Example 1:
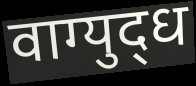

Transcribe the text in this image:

वाग्युद्ध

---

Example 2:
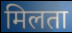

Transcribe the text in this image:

मिलता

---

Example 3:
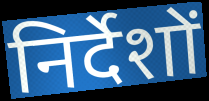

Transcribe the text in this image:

निर्देशों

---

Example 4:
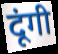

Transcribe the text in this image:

दूंगी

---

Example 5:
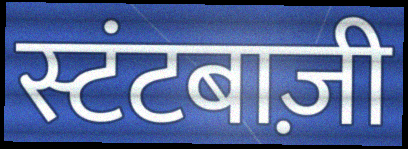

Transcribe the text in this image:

स्टंटबाज़ी